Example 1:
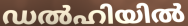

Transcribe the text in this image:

ഡൽഹിയിൽ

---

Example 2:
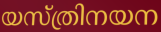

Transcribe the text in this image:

യസ്ത്രിനയന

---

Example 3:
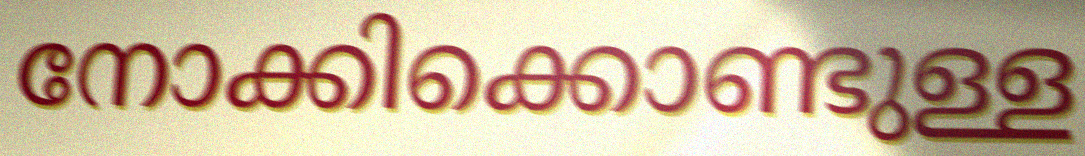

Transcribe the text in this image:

നോക്കിക്കൊണ്ടുള്ള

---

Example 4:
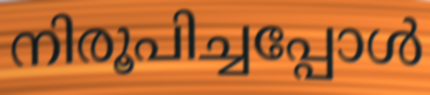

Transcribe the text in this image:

നിരൂപിച്ചപ്പോൾ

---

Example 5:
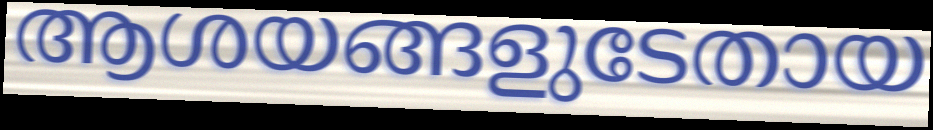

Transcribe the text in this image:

ആശയങ്ങളുടേതായ